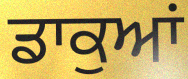
ਡਾਕੁਆਂ